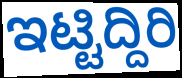
ಇಟ್ಟಿದ್ದಿರಿ